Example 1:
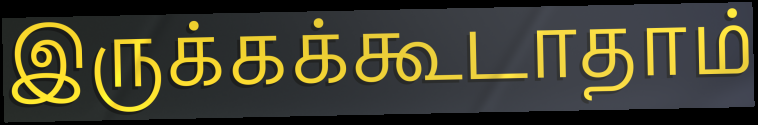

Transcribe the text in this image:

இருக்கக்கூடாதாம்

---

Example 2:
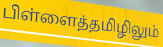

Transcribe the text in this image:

பிள்ளைத்தமிழிலும்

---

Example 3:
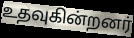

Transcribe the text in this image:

உதவுகின்றனர்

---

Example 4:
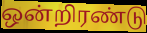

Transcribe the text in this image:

ஒன்றிரண்டு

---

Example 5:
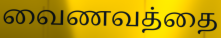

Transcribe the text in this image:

வைணவத்தை